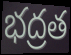
భద్రత